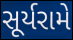
સૂર્યરામે